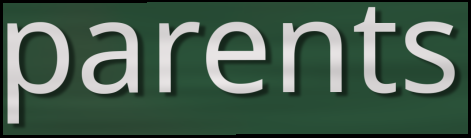
parents